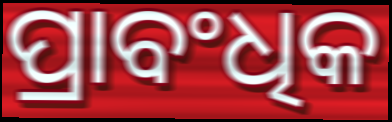
ପ୍ରାବଂଧିକ